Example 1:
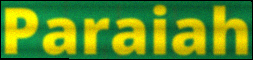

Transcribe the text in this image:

Paraiah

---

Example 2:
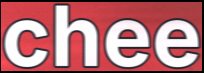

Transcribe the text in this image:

chee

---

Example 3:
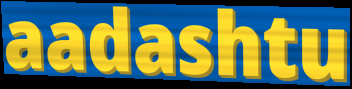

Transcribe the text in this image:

aadashtu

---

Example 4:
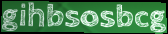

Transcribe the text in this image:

gihbsosbcg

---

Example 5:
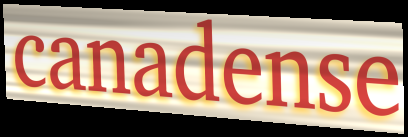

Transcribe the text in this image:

canadense